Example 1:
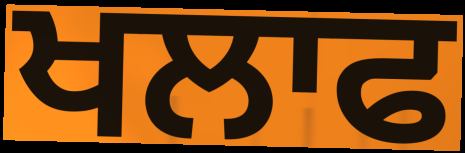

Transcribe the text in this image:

ਖਲਾਫ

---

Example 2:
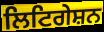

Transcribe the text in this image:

ਲਿਟਿਗੇਸ਼ਨ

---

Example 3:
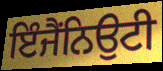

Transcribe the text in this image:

ਇੰਜੈਂਨਿਉਟੀ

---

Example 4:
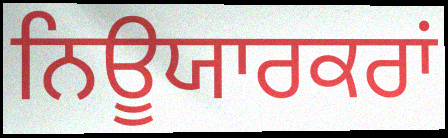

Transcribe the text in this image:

ਨਿਊਯਾਰਕਰਾਂ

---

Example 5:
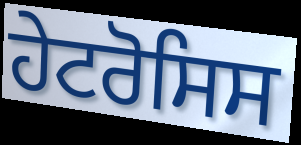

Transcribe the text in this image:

ਹੇਟਰੋਸਿਸ